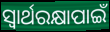
ସ୍ୱାର୍ଥରକ୍ଷାପାଇଁ